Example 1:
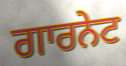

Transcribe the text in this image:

ਗਾਰਨੇਟ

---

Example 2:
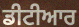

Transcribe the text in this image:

ਡੀਟੀਆਰ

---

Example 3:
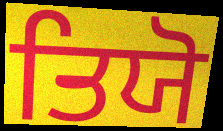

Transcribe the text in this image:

ਤਿਯੋ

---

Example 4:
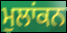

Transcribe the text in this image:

ਮੁਲਾਂਕਨ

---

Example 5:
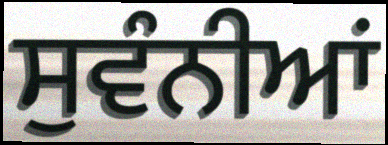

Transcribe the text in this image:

ਸੁਵੰਨੀਆਂ